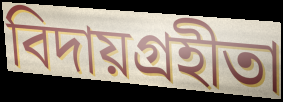
বিদায়গ্রহীতা